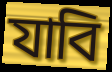
যাবি